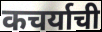
कचर्याची